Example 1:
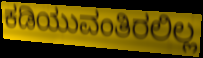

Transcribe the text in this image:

ಕಡಿಯುವಂತಿರಲಿಲ್ಲ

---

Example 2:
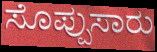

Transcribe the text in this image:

ಸೊಪ್ಪುಸಾರು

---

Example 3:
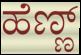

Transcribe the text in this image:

ಹೆಣ್ಣ್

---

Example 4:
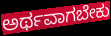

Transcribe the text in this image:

ಅರ್ಥವಾಗಬೇಕು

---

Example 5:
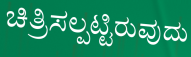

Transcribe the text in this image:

ಚಿತ್ರಿಸಲ್ಪಟ್ಟಿರುವುದು